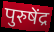
पुरुषेंद्र